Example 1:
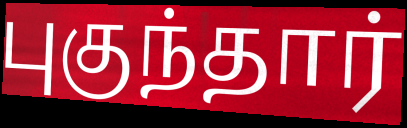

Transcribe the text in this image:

புகுந்தார்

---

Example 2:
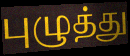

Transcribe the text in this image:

புழுத்து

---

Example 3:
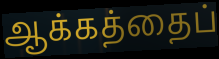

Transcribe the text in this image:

ஆக்கத்தைப்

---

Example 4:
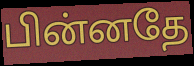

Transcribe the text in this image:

பின்னதே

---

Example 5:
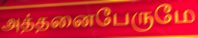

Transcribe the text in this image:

அத்தனைபேருமே